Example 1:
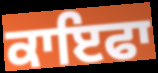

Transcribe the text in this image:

ਕਾਇਫਾ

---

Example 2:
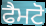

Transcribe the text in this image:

ਫੈਮਟੋ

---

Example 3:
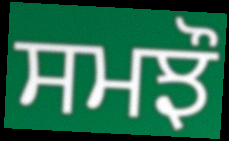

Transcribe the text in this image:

ਸਮਝੌ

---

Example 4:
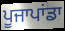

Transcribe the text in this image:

ਪੂਜਾਪਾਂਡਾ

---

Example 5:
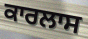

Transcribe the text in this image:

ਕਾਰਲਾਸ